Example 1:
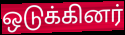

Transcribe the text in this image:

ஒடுக்கினர்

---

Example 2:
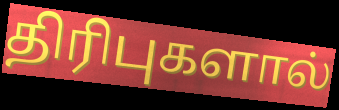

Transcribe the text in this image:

திரிபுகளால்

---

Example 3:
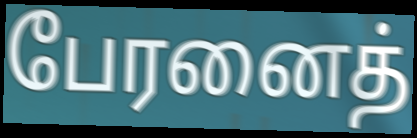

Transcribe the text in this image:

பேரனைத்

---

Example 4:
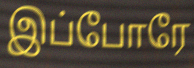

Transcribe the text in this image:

இப்போரே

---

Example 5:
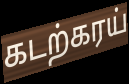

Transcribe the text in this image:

கடற்கரய்